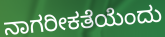
ನಾಗರೀಕತೆಯೆಂದು